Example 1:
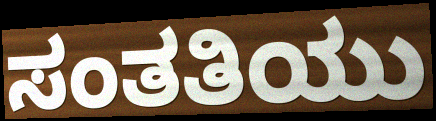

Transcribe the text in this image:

ಸಂತತಿಯು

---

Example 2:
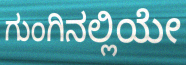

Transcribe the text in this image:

ಗುಂಗಿನಲ್ಲಿಯೇ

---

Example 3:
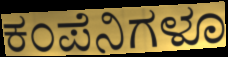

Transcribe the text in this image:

ಕಂಪೆನಿಗಳೂ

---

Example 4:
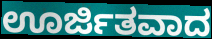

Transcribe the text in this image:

ಊರ್ಜಿತವಾದ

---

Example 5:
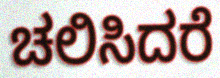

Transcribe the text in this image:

ಚಲಿಸಿದರೆ